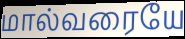
மால்வரையே